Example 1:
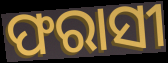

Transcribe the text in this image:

ଫରାସୀ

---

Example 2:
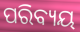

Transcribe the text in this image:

ପରିବ୍ୟୟ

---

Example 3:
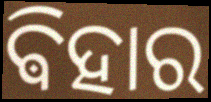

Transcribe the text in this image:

ଵିହାର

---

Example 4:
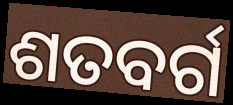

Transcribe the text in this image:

ଶତବର୍ଗ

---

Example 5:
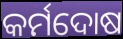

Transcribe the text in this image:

କର୍ମଦୋଷ